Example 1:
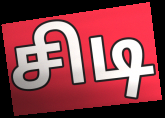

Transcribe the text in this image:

சிடி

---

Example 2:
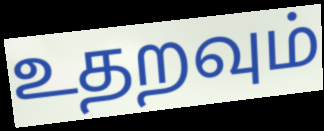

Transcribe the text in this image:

உதறவும்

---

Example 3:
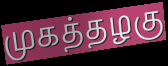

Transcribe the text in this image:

முகத்தழகு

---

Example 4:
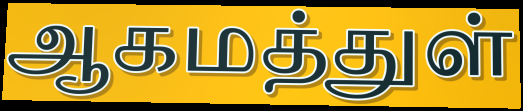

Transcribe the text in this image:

ஆகமத்துள்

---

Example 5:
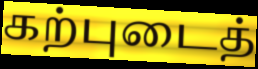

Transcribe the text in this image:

கற்புடைத்